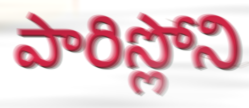
పారిస్లోని